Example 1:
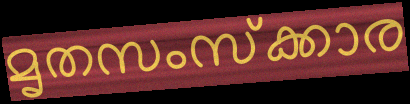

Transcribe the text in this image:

മൃതസംസ്ക്കാര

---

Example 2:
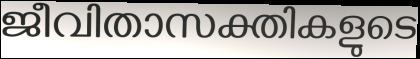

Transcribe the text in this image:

ജീവിതാസക്തികളുടെ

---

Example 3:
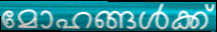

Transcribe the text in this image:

മോഹങ്ങൾക്ക്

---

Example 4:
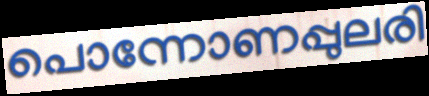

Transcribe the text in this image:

പൊന്നോണപ്പുലരി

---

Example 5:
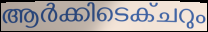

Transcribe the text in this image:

ആർക്കിടെക്ചറും